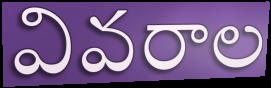
వివరాల